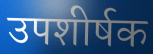
उपशीर्षक